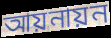
আয়নায়ন